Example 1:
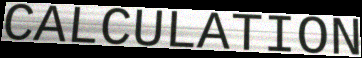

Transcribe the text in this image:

CALCULATION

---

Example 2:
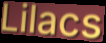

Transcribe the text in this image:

Lilacs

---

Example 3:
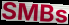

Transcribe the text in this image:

SMBs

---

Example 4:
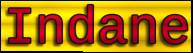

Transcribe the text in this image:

Indane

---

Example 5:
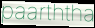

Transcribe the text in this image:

paarththa